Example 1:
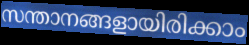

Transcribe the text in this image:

സന്താനങ്ങളായിരിക്കാം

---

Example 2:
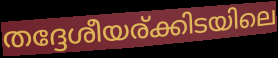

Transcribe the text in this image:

തദ്ദേശീയര്ക്കിടയിലെ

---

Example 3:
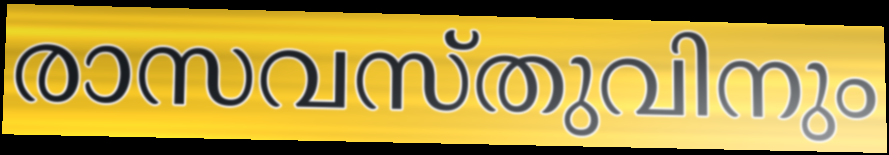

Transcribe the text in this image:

രാസവസ്തുവിനും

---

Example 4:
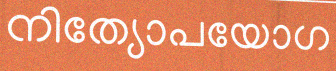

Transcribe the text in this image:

നിത്യോപയോഗ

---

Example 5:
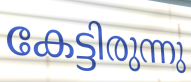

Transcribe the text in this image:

കേട്ടിരുന്നു